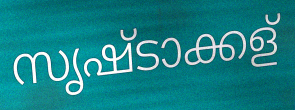
സൃഷ്ടാക്കള്